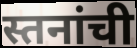
स्तनांची